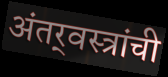
अंतर्वस्त्रांची